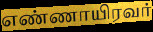
எண்ணாயிரவர்